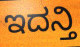
ಇದನ್ತಿ